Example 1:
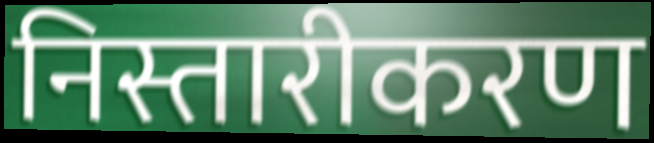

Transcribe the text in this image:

निस्तारीकरण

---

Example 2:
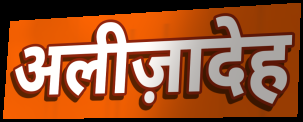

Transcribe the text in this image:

अलीज़ादेह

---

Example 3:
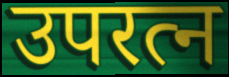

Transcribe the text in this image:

उपरत्न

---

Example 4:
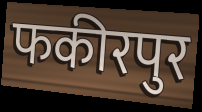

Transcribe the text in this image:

फकीरपुर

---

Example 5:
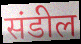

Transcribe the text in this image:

संडील